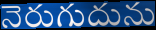
నెరుగుదును